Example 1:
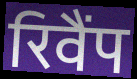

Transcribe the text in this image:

रिवैंप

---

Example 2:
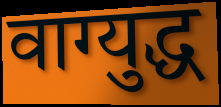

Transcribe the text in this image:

वाग्युद्ध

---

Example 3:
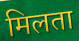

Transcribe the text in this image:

मिलता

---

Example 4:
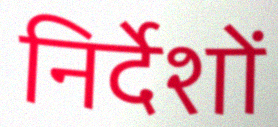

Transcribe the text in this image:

निर्देशों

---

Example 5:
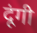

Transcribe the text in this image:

दूंगी